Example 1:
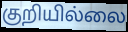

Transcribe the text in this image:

குறியில்லை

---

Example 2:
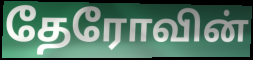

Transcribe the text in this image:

தேரோவின்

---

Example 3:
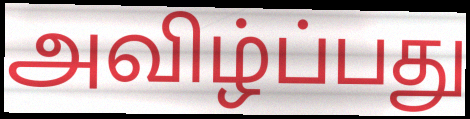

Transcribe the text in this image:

அவிழ்ப்பது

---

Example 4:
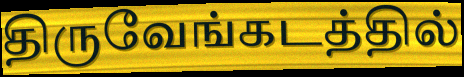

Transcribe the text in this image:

திருவேங்கடத்தில்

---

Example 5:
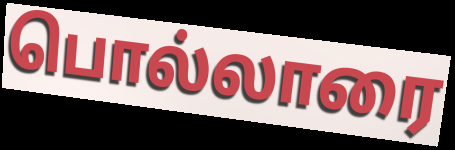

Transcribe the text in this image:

பொல்லாரை